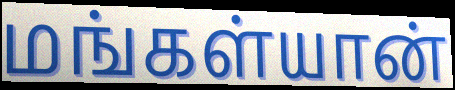
மங்கள்யான்